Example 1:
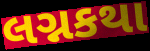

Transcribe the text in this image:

લગ્નકથા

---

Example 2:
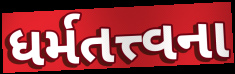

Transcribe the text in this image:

ધર્મતત્ત્વના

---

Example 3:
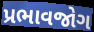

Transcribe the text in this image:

પ્રભાવજોગ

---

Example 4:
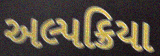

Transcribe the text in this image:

અલ્પક્રિયા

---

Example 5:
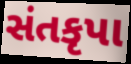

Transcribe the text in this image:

સંતકૃપા